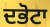
ਦਭੋਟਾ